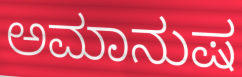
ಅಮಾನುಷ